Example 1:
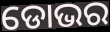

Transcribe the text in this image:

ଡୋଭର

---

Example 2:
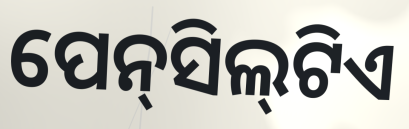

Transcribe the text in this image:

ପେନ୍‍ସିଲ୍‍ଟିଏ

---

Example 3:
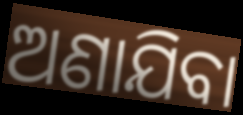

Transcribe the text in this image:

ଅଣାଯିବା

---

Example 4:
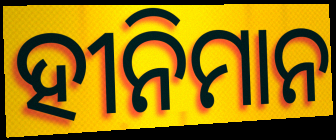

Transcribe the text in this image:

ହୀନିମାନ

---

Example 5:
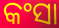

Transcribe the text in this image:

କଂସା